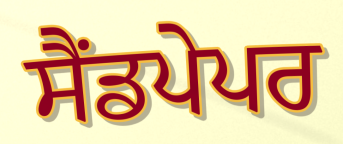
ਸੈਂਡਪੇਪਰ